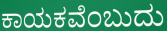
ಕಾಯಕವೆಂಬುದು